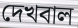
দেখবাল